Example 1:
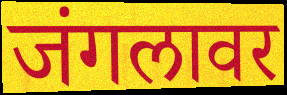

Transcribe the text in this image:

जंगलावर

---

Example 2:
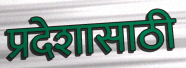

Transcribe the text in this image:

प्रदेशासाठी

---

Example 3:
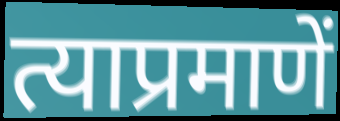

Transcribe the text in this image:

त्याप्रमाणें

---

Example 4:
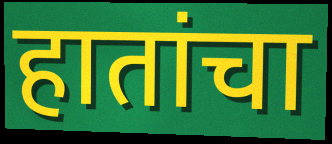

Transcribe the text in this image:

हातांचा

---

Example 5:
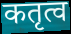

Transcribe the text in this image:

कतृत्व